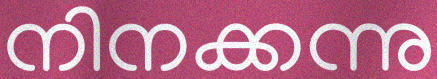
നിനക്കന്നു